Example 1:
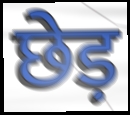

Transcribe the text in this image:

छेड़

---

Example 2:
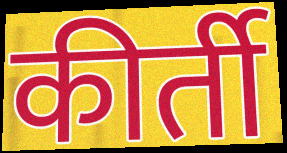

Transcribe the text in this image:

कीर्ती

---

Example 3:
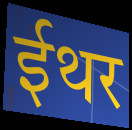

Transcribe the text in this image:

ईथर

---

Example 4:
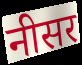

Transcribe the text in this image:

नीसर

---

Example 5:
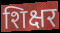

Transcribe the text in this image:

शिक्षर